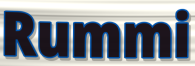
Rummi